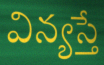
విన్యస్తే